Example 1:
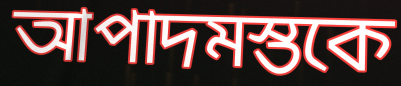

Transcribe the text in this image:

আপাদমস্তকে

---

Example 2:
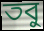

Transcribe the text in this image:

তবু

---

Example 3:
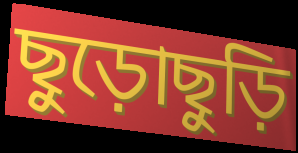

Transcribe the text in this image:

ছুড়োছুড়ি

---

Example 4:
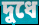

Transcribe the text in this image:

দুধে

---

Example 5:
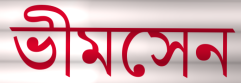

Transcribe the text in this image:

ভীমসেন